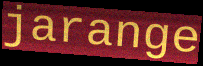
jarange